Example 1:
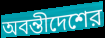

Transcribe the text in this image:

অবন্তীদেশের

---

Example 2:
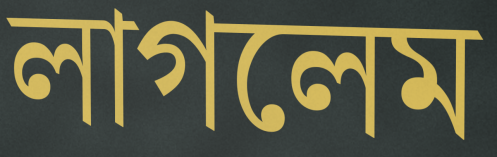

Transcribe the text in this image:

লাগলেম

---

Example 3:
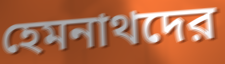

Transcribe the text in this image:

হেমনাথদের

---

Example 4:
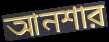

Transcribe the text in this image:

আনশার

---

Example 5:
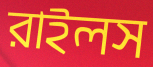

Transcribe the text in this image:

রাইলস